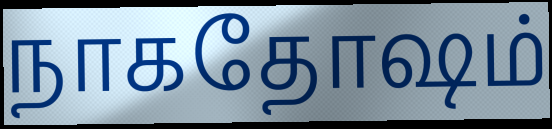
நாகதோஷம்